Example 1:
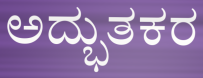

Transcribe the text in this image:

ಅದ್ಭುತಕರ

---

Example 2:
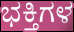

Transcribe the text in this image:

ಭಕ್ತಿಗಳ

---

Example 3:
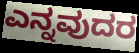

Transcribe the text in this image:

ಎನ್ನವುದರ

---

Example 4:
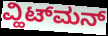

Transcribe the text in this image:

ವ್ಹಿಟ್‌ಮನ್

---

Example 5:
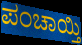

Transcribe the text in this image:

ಪಂಚಾಯ್ತಿ